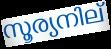
സൂര്യനില്